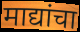
माद्यांचा